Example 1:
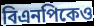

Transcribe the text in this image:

বিএনপিকেও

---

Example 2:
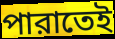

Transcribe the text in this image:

পারাতেই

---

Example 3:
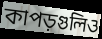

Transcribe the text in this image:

কাপড়গুলিও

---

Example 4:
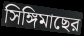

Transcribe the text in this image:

সিঙ্গিমাছের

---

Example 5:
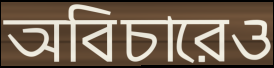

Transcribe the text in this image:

অবিচারেও